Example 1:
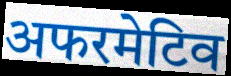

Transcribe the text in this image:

अफरमेटिव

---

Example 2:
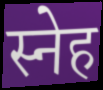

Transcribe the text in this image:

स्नेह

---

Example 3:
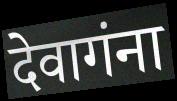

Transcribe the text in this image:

देवागंना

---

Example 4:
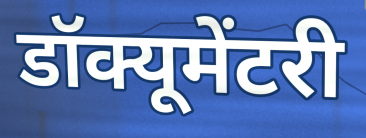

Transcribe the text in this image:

डॉक्यूमेंटरी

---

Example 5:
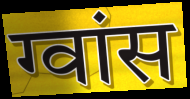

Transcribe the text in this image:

ग्वांस